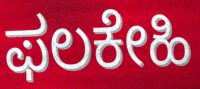
ಫಲಕೇಹಿ